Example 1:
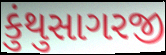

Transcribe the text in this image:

કુંથુસાગરજી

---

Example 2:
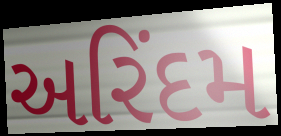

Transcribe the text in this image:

અરિંદમ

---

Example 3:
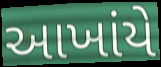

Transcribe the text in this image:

આખાંયે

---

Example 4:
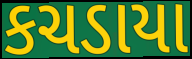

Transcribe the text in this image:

કચડાયા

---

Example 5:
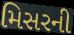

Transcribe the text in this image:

મિસરની